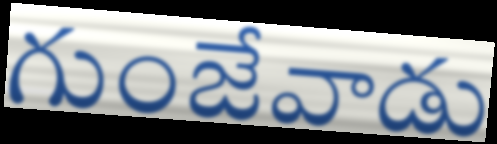
గుంజేవాడు